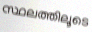
സ്ഥലത്തിലൂടെ